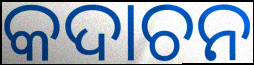
କଦାଚନ